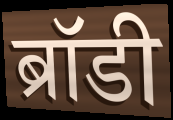
ब्रॉडी